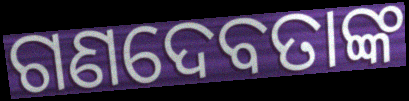
ଗଣଦେବତାଙ୍କ